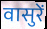
वासुरें